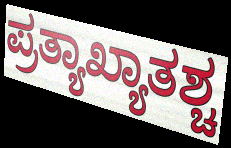
ಪ್ರತ್ಯಾಖ್ಯಾತಶ್ಚ